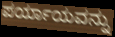
ಪರ್ಯಾಯವನ್ನು